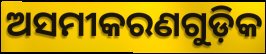
ଅସମୀକରଣଗୁଡ଼ିକ